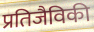
प्रतिजैविकी